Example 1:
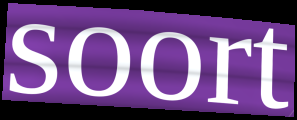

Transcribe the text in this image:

soort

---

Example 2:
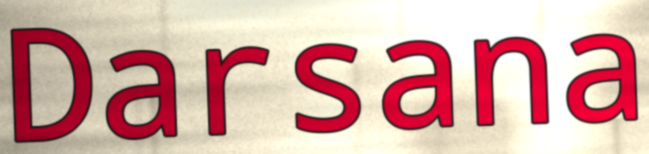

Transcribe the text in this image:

Darsana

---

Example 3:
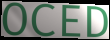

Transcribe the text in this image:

OCED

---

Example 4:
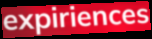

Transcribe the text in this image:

expiriences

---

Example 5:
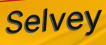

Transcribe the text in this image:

Selvey